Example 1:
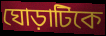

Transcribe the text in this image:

ঘোড়াটিকে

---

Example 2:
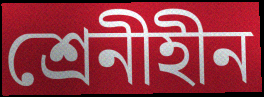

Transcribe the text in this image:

শ্রেনীহীন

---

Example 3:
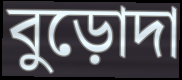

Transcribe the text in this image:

বুড়োদা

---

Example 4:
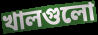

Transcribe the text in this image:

খালগুলো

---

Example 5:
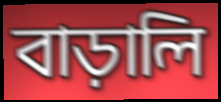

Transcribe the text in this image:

বাড়ালি